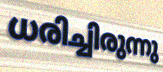
ധരിച്ചിരുന്നു